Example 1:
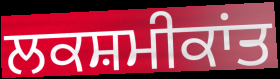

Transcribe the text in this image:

ਲਕਸ਼ਮੀਕਾਂਤ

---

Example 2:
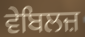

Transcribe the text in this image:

ਵੇਬਿਲਜ਼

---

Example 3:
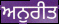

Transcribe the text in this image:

ਅਨੁਰੀਤ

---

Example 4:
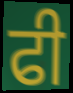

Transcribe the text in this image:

ਫੀ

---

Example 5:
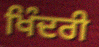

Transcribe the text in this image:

ਖਿੰਦਰੀ